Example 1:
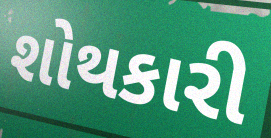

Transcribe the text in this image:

શોથકારી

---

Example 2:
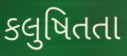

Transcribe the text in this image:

કલુષિતતા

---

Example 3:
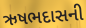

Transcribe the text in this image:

ઋષભદાસની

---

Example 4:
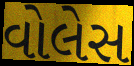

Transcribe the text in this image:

વોલેસ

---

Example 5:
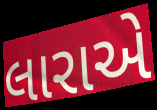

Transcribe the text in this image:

લારાએ